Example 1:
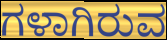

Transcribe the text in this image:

ಗಳಾಗಿರುವ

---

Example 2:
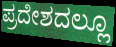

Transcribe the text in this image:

ಪ್ರದೇಶದಲ್ಲೂ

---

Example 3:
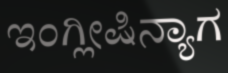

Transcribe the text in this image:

ಇಂಗ್ಲೀಷಿನ್ಯಾಗ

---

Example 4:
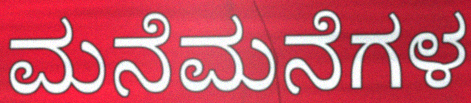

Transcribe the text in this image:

ಮನೆಮನೆಗಳ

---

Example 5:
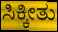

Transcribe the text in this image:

ಸಿಕ್ಕೀತು